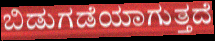
ಬಿಡುಗಡೆಯಾಗುತ್ತದೆ